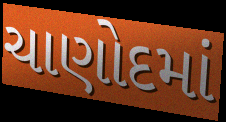
ચાણોદમાં